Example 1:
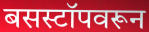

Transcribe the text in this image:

बसस्टॉपवरून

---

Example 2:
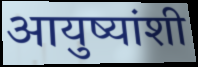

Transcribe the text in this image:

आयुष्यांशी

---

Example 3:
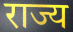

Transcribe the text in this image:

राज्य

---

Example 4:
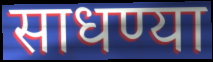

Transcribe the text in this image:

साधण्या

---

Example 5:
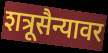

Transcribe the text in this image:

शत्रूसैन्यावर